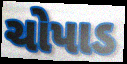
ચોપાડ